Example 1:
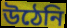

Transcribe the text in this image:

উঠেনি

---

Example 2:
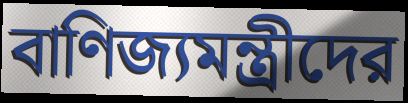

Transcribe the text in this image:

বাণিজ্যমন্ত্রীদের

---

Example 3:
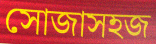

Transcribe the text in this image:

সোজাসহজ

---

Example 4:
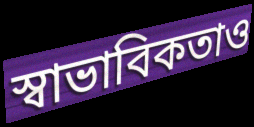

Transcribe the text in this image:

স্বাভাবিকতাও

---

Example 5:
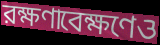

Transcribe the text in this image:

রক্ষণাবেক্ষণেও